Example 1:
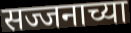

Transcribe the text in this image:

सज्जनाच्या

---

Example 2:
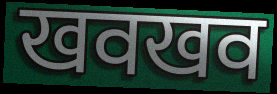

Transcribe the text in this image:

खवखव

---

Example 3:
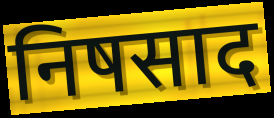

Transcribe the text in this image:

निषसाद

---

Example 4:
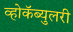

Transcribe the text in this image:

व्होकॅब्युलरी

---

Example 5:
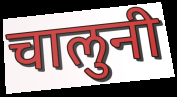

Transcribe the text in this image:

चालुनी